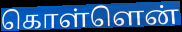
கொள்ளென்